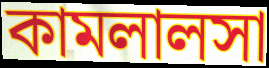
কামলালসা